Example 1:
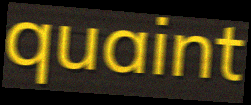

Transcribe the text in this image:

quaint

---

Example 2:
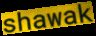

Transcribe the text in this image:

shawak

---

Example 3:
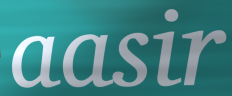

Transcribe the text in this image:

aasir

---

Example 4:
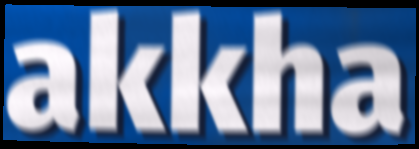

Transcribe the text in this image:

akkha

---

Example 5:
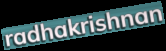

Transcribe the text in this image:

radhakrishnan